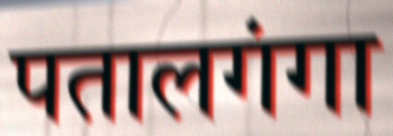
पतालगंगा